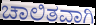
ಚಾಲಿತವಾಗಿ